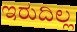
ಇರುದಿಲ್ಲ